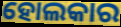
ହୋଲକାର